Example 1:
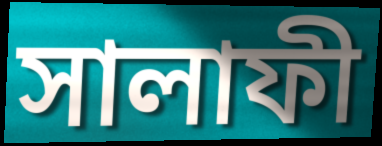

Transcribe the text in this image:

সালাফী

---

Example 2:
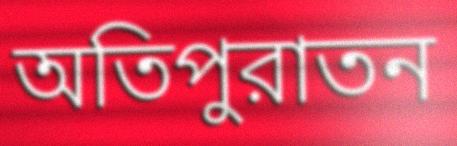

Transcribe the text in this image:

অতিপুরাতন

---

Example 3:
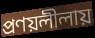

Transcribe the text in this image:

প্রণয়লীলায়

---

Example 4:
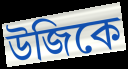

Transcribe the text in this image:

উজিকে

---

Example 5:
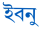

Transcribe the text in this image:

ইবনু